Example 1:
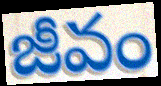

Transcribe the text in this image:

జీవం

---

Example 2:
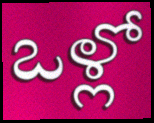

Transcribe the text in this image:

ఒళ్లో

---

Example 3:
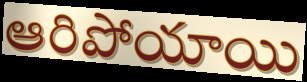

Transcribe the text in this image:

ఆరిపోయాయి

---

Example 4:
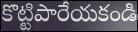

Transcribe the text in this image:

కొట్టిపారేయకండి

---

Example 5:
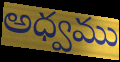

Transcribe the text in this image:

అధ్వము